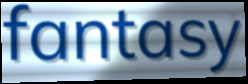
fantasy